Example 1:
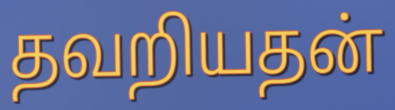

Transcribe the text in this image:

தவறியதன்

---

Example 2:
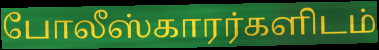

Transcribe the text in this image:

போலீஸ்காரர்களிடம்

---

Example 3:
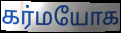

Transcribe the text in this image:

கர்மயோக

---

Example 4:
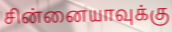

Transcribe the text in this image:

சின்னையாவுக்கு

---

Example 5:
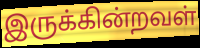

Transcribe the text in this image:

இருக்கின்றவள்